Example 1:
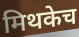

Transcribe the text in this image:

मिथकेच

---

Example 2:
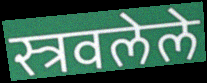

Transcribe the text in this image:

स्त्रवलेले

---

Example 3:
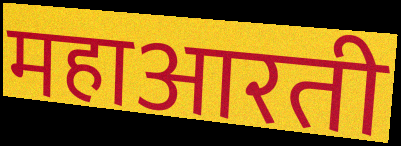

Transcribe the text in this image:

महाआरती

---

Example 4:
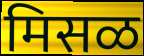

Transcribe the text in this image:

मिसळ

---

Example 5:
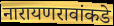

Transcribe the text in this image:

नारायणरावांकडे